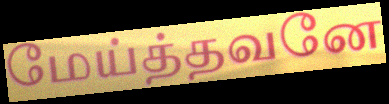
மேய்த்தவனே